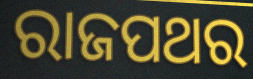
ରାଜପଥର